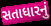
સતાધારનું